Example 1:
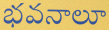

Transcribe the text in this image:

భవనాలూ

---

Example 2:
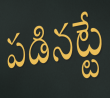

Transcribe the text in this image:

పడినట్టే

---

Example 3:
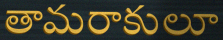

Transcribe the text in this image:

తామరాకులూ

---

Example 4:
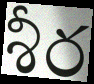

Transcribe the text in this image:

శీర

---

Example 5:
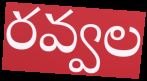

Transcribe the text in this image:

రవ్వల